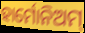
ହାର୍ମୋନିଅମ୍